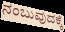
ನಂಬುವುದಕ್ಕೆ